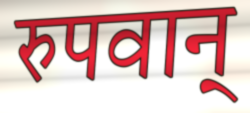
रुपवान्